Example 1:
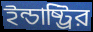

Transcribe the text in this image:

ইন্ডাষ্ট্রির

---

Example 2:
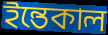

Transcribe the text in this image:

ইন্তেকাল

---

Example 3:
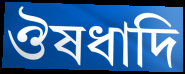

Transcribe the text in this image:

ঔষধাদি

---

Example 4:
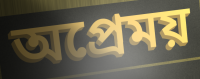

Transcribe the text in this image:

অপ্রেময়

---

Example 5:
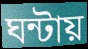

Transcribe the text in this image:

ঘন্টায়